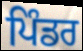
ਪਿੰਡਰ